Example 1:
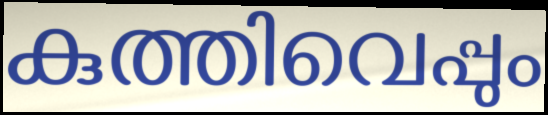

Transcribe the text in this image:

കുത്തിവെപ്പും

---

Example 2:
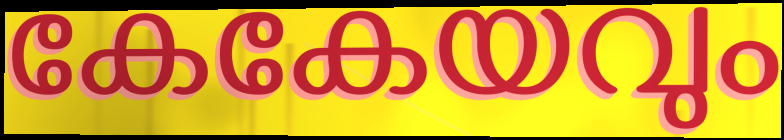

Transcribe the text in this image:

കേകേയവും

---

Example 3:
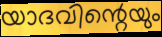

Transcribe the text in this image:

യാദവിന്റെയും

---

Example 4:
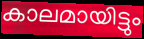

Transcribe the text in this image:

കാലമായിട്ടും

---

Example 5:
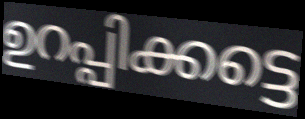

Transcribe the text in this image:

ഉറപ്പിക്കട്ടെ